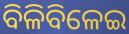
ବିଳିବିଳେଇ